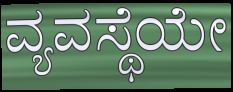
ವ್ಯವಸ್ಥೆಯೇ